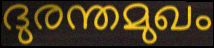
ദുരന്തമുഖം